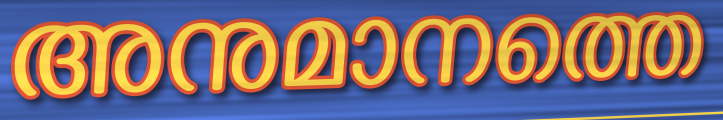
അനുമാനത്തെ